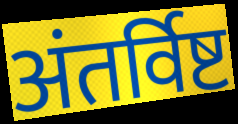
अंतर्विष्ट